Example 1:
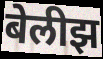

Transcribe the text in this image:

बेलीझ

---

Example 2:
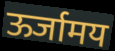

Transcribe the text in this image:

ऊर्जामय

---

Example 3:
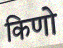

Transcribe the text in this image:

किणो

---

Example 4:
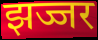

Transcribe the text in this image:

झज्जर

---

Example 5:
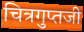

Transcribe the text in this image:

चित्रगुप्तजी